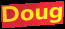
Doug